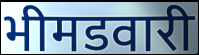
भीमडवारी